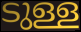
ടുള്ള